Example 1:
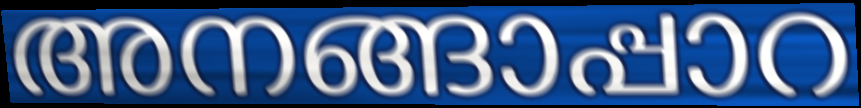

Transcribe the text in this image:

അനങ്ങാപ്പാറ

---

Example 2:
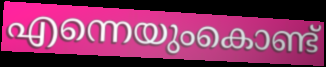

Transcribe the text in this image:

എന്നെയുംകൊണ്ട്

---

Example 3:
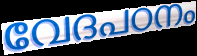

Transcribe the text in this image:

വേദപഠനം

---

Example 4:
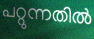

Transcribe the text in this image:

പറ്റുന്നതിൽ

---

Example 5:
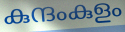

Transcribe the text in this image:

കുന്ദംകുളം